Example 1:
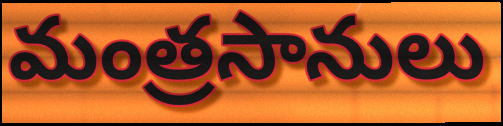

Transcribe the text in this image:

మంత్రసానులు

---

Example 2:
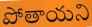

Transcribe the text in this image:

పోతాయని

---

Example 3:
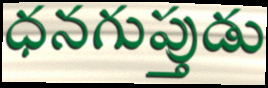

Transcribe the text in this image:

ధనగుప్తుడు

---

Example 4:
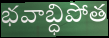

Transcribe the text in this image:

భవాబ్ధిపోత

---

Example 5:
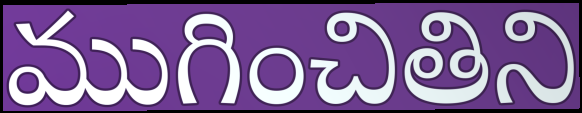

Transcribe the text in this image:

ముగించితిని